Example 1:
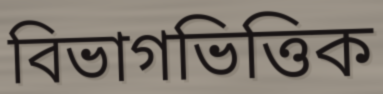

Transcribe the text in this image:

বিভাগভিত্তিক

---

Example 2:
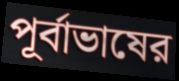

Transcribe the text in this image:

পূর্বাভাষের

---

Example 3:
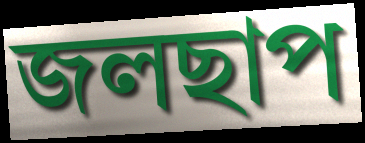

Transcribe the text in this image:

জলছাপ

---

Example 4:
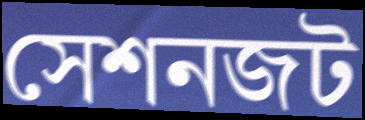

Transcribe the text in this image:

সেশনজট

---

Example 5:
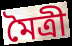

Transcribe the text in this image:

মৈত্রী